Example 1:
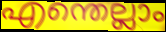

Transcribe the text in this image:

എന്തെല്ലാം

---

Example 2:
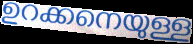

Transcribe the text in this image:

ഉറക്കനെയുള്ള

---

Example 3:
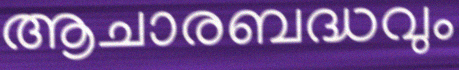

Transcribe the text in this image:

ആചാരബദ്ധവും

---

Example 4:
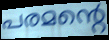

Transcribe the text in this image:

പരമന്റെ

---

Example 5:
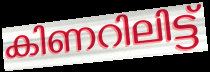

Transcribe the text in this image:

കിണറിലിട്ട്